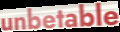
unbetable